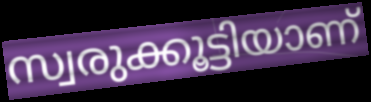
സ്വരുക്കൂട്ടിയാണ്